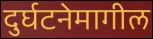
दुर्घटनेमागील